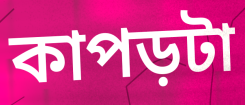
কাপড়টা